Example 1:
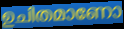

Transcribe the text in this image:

ഉചിതമാണോ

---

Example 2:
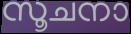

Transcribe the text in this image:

സൂചനാ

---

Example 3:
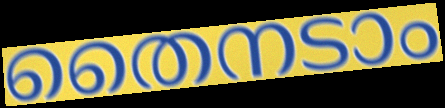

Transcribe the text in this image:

തൈനടാം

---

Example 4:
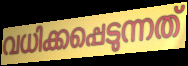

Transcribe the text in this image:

വധിക്കപ്പെടുന്നത്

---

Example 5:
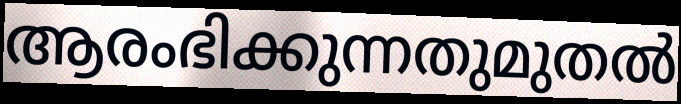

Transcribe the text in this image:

ആരംഭിക്കുന്നതുമുതൽ